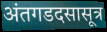
अंतगडदसासूत्र